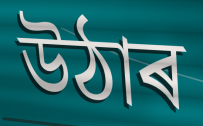
উঠাৰ